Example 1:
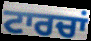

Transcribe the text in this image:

ਟਾਰਚਾਂ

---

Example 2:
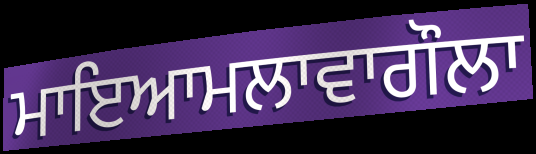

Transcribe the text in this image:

ਮਾਇਆਮਲਾਵਾਗੌਲਾ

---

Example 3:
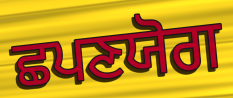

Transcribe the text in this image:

ਛਪਣਯੋਗ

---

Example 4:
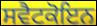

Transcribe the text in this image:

ਸਵੈਟਕੋਇਨ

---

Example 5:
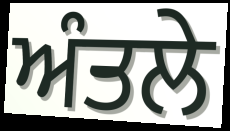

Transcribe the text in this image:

ਅੰਤਲੇ